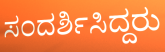
ಸಂದರ್ಶಿಸಿದ್ದರು